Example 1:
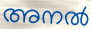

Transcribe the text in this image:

അനൽ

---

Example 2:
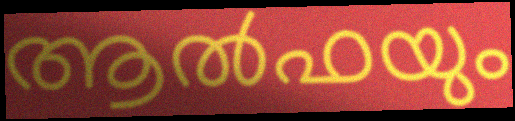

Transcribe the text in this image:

ആൽഫയും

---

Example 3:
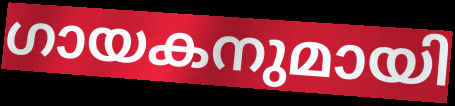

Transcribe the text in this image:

ഗായകനുമായി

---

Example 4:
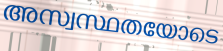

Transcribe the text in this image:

അസ്വസ്ഥതയോടെ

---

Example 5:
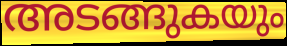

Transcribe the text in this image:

അടങ്ങുകയും